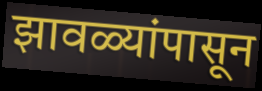
झावळ्यांपासून